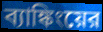
ব্যাঙ্কিংয়ের